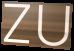
ZU